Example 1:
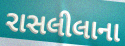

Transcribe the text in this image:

રાસલીલાના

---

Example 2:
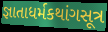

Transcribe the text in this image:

જ્ઞાતાધર્મકથાંગસૂત્ર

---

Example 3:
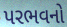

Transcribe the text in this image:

પરભવનો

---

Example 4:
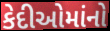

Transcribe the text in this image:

કેદીઓમાંનો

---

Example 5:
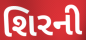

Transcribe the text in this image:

શિરની